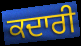
ਕਦਾਰੀ